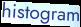
histogram